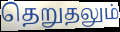
தெறுதலும்